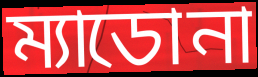
ম্যাডোনা